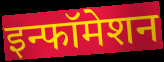
इन्फॉमेशन